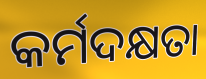
କର୍ମଦକ୍ଷତା